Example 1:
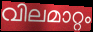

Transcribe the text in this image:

വിലമാറ്റം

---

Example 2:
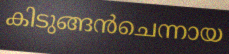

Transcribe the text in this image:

കിടുങ്ങൻചെന്നായ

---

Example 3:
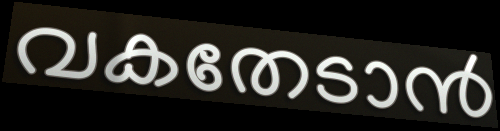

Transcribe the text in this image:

വകതേടാൻ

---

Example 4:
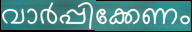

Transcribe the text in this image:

വാർപ്പിക്കേണം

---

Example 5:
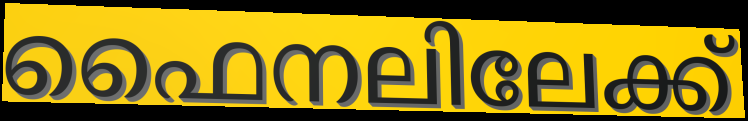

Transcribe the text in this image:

ഫൈനലിലേക്ക്